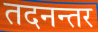
तदनन्तर